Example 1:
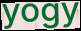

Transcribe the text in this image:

yogy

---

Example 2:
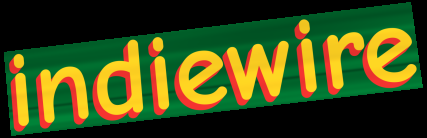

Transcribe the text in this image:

indiewire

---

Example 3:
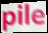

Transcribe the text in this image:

pile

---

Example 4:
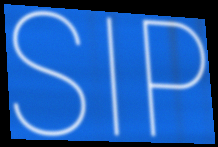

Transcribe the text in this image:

SIP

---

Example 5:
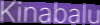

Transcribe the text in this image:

Kinabalu